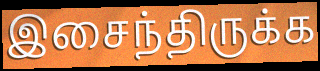
இசைந்திருக்க